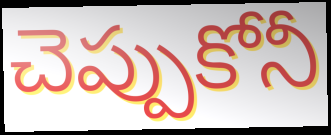
చెప్పుకోనీ